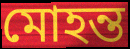
মোহন্ত